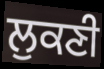
ਲੁਕਣੀ